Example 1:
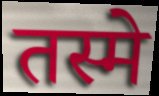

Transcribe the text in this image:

तस्मे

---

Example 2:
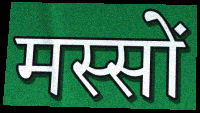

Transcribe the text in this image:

मस्सों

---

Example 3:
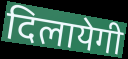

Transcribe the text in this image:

दिलायेगी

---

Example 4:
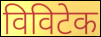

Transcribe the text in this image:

विविटेक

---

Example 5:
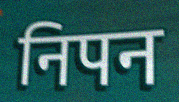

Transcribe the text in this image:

निपन